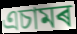
এচামৰ